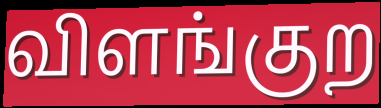
விளங்குற